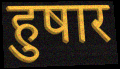
हुषार